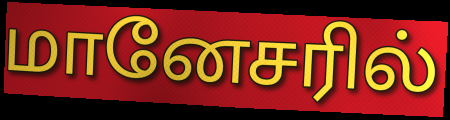
மானேசரில்